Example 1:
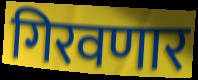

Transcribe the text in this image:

गिरवणार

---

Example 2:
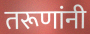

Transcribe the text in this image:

तरूणांनी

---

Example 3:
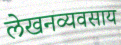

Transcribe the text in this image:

लेखनव्यवसाय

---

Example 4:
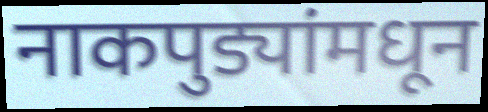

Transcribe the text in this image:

नाकपुड्यांमधून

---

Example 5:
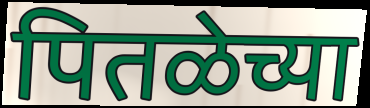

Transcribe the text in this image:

पितळेच्या